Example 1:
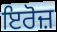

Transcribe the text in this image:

ਇਰੋਜ਼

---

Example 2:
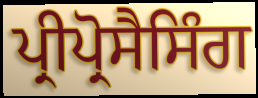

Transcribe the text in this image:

ਪ੍ਰੀਪ੍ਰੋਸੈਸਿੰਗ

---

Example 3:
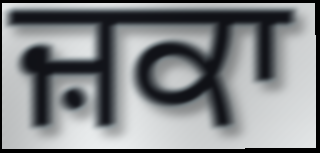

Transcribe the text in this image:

ਜ਼ਕਾ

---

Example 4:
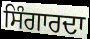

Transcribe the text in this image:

ਸਿੰਗਾਰਦਾ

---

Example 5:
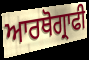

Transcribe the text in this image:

ਆਰਥੋਗ੍ਰਾਫੀ